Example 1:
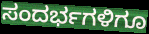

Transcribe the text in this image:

ಸಂದರ್ಭಗಳಿಗೂ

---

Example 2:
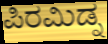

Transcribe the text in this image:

ಪಿರಮಿಡ್ನ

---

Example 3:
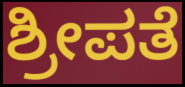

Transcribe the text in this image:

ಶ್ರೀಪತೆ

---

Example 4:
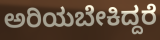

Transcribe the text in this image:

ಅರಿಯಬೇಕಿದ್ದರೆ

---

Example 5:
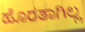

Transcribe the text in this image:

ಹೊರತಾಗಿಲ್ಲ